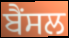
ਬੈਂਸਲ